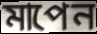
মাপেন